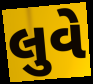
લુવે